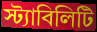
স্ট্যাবিলিটি